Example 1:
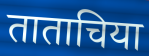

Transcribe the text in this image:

ताताचिया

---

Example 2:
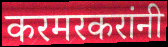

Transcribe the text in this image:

करमरकरांनी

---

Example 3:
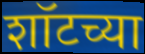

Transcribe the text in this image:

शॉटच्या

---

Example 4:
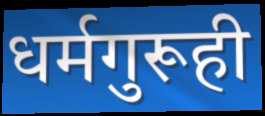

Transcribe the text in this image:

धर्मगुरूही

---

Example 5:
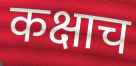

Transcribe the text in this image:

कक्षाच